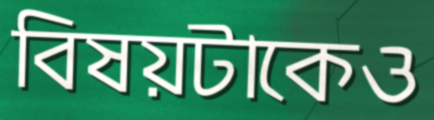
বিষয়টাকেও